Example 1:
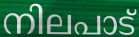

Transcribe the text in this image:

നിലപാട്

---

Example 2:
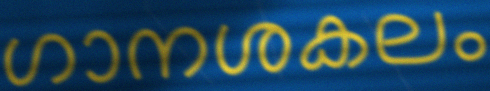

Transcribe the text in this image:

ഗാനശകലം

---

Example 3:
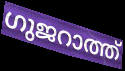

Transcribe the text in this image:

ഗുജറാത്ത്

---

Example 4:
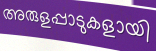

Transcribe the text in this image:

അരുളപ്പാടുകളായി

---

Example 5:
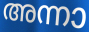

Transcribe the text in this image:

അന്നാ